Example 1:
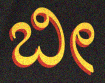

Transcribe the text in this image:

ಬೀ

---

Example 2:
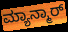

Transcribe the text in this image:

ಮ್ಯಾನ್ಮಾರ್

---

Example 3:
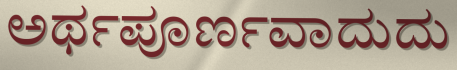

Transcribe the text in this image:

ಅರ್ಥಪೂರ್ಣವಾದುದು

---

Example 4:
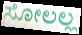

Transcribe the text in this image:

ಸೋಲಲ್ಲ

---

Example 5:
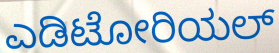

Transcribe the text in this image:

ಎಡಿಟೋರಿಯಲ್